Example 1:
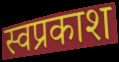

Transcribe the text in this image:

स्वप्रकाश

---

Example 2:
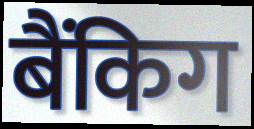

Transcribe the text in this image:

बैंकिग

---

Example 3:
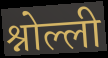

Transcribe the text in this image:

श्नोल्ली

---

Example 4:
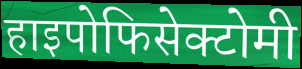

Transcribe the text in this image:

हाइपोफिसेक्टोमी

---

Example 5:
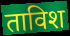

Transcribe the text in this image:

ताविश